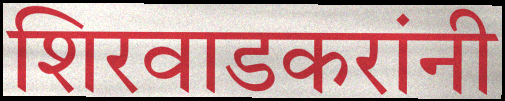
शिरवाडकरांनी